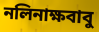
নলিনাক্ষবাবু